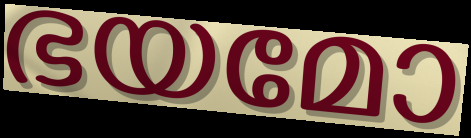
ഭയമോ